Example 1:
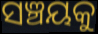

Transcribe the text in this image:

ସଞ୍ଚୟକୁ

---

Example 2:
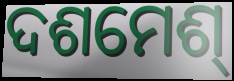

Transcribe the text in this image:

ଦଶମେଶ୍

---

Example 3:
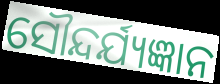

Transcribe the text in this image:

ସୌନ୍ଦର୍ଯ୍ୟଜ୍ଞାନ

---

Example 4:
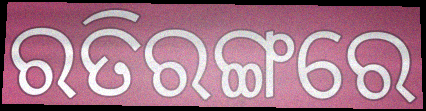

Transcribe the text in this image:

ରତିରଙ୍ଗରେ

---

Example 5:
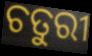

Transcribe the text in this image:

ଚତୁରୀ